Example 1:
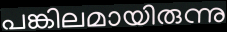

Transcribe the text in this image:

പങ്കിലമായിരുന്നു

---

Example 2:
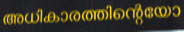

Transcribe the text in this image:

അധികാരത്തിന്റെയോ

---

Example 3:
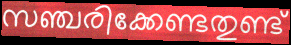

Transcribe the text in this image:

സഞ്ചരിക്കേണ്ടതുണ്ട്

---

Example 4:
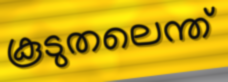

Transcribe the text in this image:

കൂടുതലെന്ത്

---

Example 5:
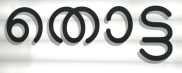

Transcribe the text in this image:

തൊട്ട